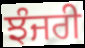
ਝੰਜਰੀ